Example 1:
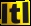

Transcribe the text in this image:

ltl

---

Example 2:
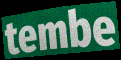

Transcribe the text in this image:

tembe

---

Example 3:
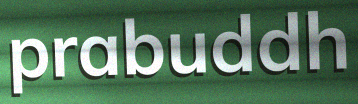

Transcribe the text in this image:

prabuddh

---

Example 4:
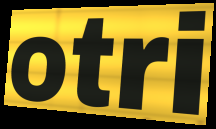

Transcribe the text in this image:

otri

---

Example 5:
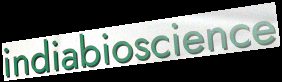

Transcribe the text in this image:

indiabioscience